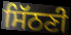
ਸਿੱਠਣੀ